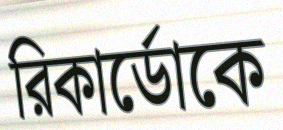
রিকার্ডোকে